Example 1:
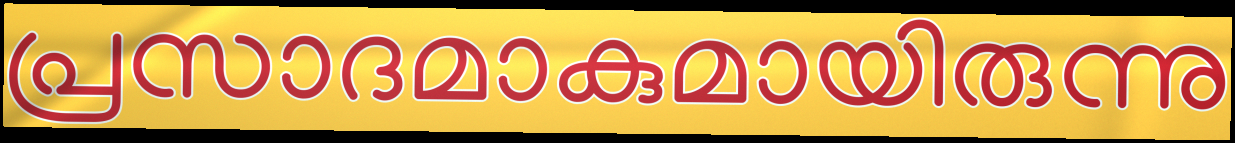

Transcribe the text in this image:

പ്രസാദമാകുമായിരുന്നു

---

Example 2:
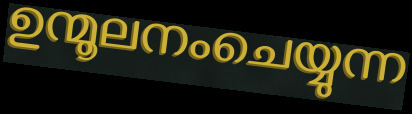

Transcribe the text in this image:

ഉന്മൂലനംചെയ്യുന്ന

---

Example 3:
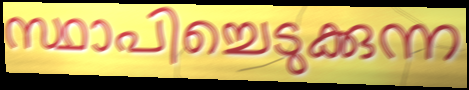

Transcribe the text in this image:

സ്ഥാപിച്ചെടുക്കുന്ന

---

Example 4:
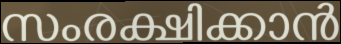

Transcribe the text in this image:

സംരക്ഷിക്കാൻ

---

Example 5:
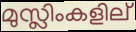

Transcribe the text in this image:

മുസ്ലിംകളില്